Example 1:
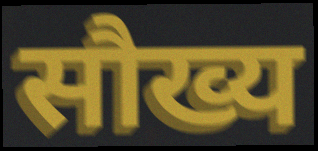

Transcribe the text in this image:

सौख्य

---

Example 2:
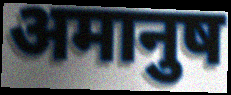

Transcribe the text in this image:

अमानुष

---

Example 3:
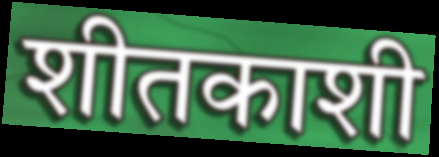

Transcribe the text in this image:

शीतकाशी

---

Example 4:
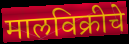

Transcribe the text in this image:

मालविक्रीचे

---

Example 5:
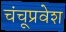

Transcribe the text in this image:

चंचूप्रवेश